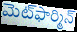
మెట్‌ఫార్మిన్